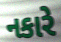
નકારે